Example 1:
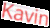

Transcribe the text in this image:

Kavin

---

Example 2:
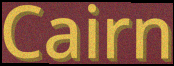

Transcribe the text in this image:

Cairn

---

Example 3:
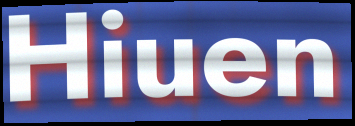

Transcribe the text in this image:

Hiuen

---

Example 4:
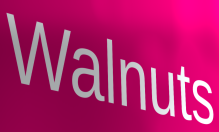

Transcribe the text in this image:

Walnuts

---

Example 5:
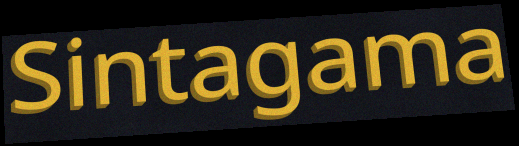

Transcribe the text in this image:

Sintagama